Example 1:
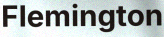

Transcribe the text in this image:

Flemington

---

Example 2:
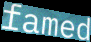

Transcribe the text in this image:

famed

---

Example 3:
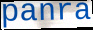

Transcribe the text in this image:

panra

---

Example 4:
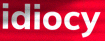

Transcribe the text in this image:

idiocy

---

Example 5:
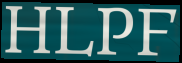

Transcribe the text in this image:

HLPF